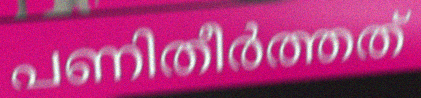
പണിതീർത്തത്